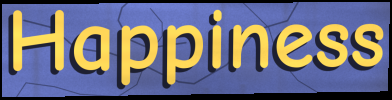
Happiness